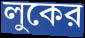
লুকের